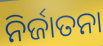
ନିର୍ଜାତନା